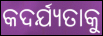
କଦର୍ଯ୍ୟତାକୁ